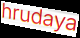
hrudaya